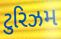
ટુરિઝમ